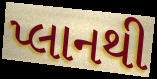
પ્લાનથી